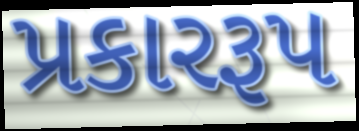
પ્રકારરૂપ